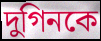
দুগিনকে